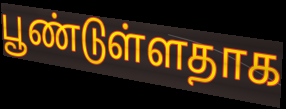
பூண்டுள்ளதாக